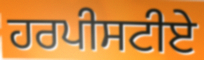
ਹਰਪੀਸਟੀਏ